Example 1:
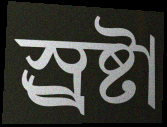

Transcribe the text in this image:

স্র্রষ্টা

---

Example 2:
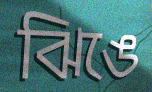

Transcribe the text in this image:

ঝিঙে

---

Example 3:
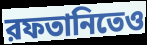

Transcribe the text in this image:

রফতানিতেও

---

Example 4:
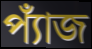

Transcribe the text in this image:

প্যাঁজ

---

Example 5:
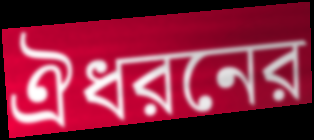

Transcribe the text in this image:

ঐধরনের